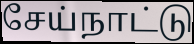
சேய்நாட்டு